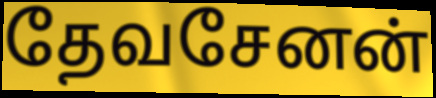
தேவசேனன்